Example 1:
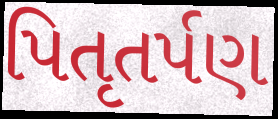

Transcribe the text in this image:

પિતૃતર્પણ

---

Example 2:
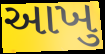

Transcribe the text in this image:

આખુ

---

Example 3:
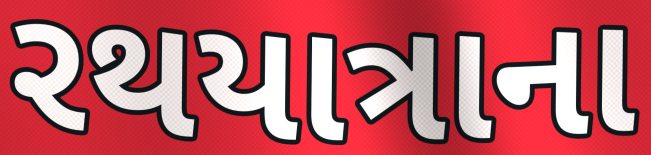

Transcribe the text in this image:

રથયાત્રાના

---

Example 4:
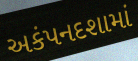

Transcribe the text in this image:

અકંપનદશામાં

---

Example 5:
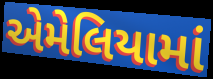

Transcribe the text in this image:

એમેલિયામાં